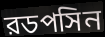
রডপসিন